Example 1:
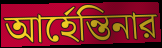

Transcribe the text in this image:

আর্হেন্তিনার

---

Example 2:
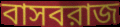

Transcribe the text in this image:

বাসবরাজ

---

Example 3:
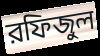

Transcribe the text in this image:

রফিজুল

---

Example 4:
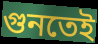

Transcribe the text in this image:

গুনতেই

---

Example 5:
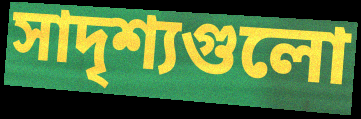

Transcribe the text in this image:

সাদৃশ্যগুলো